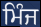
ਮਿੰਜ